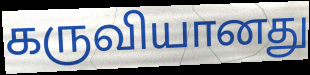
கருவியானது